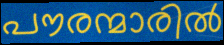
പൗരന്മാരിൽ